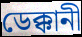
ডেক্কানী